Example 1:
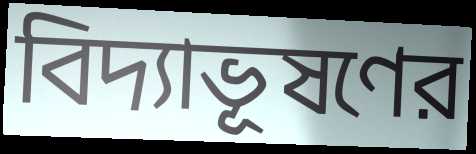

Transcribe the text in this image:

বিদ্যাভূষণের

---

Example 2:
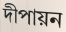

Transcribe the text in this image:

দীপায়ন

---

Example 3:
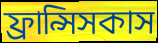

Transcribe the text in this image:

ফ্রান্সিসকাস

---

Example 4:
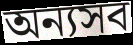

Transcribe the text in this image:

অন্যসব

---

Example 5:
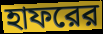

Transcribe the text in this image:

হাফরের